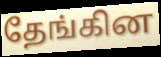
தேங்கின